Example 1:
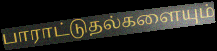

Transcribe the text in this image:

பாராட்டுதல்களையும்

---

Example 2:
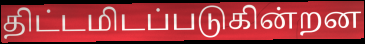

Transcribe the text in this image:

திட்டமிடப்படுகின்றன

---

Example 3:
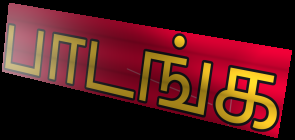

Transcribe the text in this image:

பாடங்க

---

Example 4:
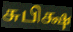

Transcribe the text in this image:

சுபிக்ஷ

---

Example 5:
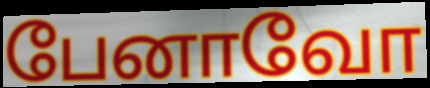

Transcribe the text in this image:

பேனாவோ